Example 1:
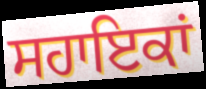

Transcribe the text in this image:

ਸਹਾਇਕਾਂ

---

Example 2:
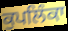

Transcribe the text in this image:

ਕੁਪਲਿੰਕਾ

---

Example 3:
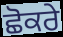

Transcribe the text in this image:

ਛੋਕਰੇ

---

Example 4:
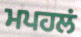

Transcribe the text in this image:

ਮਪਹਲਂ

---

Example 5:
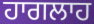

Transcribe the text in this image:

ਹਾਗਲਾਹ